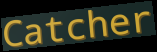
Catcher